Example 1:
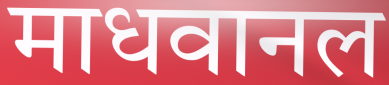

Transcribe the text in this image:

माधवानल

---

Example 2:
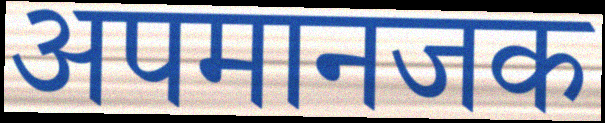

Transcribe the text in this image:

अपमानजक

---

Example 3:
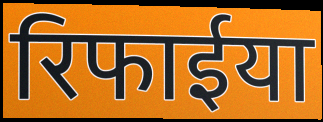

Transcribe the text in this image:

रिफाईया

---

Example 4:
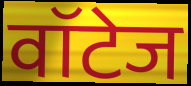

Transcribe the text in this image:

वॉटेज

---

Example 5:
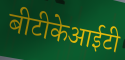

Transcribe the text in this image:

बीटीकेआईटी